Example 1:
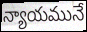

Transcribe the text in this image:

న్యాయమునే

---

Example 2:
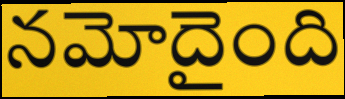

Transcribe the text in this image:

నమోదైంది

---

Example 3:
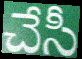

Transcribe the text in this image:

చేసీ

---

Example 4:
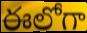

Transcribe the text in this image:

ఈలోగా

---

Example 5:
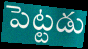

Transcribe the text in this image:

పెట్టడు